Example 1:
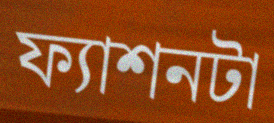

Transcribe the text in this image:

ফ্যাশনটা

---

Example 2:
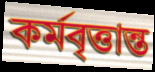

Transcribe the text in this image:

কর্মবৃত্তান্ত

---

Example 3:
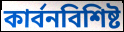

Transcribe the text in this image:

কার্বনবিশিষ্ট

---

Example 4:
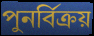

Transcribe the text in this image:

পুনর্বিক্রয়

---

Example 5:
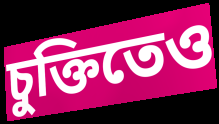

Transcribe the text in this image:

চুক্তিতেও